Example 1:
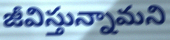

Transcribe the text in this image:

జీవిస్తున్నామని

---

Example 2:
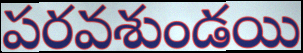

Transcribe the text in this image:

పరవశుండయి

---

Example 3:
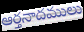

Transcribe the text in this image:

ఆర్తనాదములు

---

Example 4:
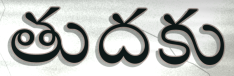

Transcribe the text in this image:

తుదకు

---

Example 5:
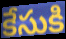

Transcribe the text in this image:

కేసుకి